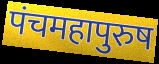
पंचमहापुरुष